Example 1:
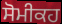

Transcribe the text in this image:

ਸੋਮੀਕਹ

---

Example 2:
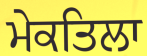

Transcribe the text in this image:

ਮੇਕਤਿਲਾ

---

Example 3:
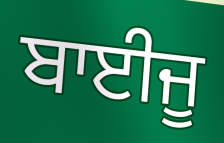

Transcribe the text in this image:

ਬਾਈਜੂ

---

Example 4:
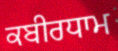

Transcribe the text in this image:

ਕਬੀਰਧਾਮ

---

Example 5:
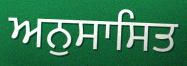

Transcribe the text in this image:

ਅਨੁਸਾਸਿਤ